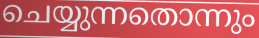
ചെയ്യുന്നതൊന്നും